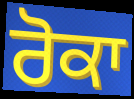
ਰੋਕਾ